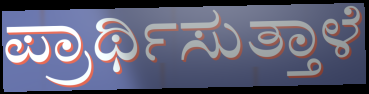
ಪ್ರಾರ್ಥಿಸುತ್ತಾಳೆ